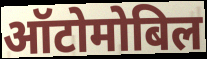
ऑटोमोबिल